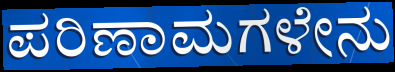
ಪರಿಣಾಮಗಳೇನು